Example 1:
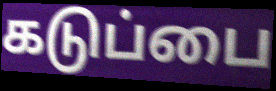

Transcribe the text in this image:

கடுப்பை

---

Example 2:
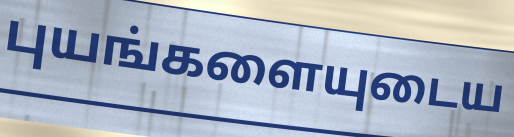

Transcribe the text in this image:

புயங்களையுடைய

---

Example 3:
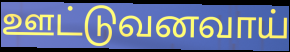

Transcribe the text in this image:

ஊட்டுவனவாய்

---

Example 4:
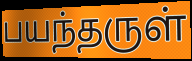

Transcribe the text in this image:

பயந்தருள்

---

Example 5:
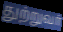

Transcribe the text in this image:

துற்றுவர்